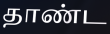
தாண்ட